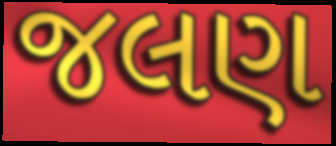
જલણ